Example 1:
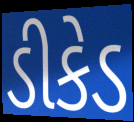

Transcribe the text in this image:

ડીકેડ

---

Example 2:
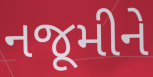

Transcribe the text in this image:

નજૂમીને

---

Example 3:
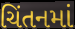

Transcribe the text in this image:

ચિંતનમાં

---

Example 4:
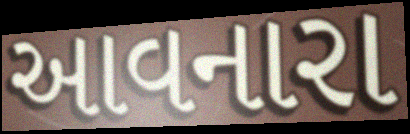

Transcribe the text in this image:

આવનારા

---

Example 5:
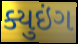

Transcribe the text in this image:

ક્યુઇંગ